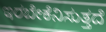
ಇರಬೇಕೆನಿಸುತ್ತದೆ